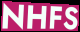
NHFS